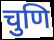
चुणि